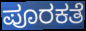
ಪೂರಕತೆ